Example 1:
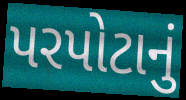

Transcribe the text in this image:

પરપોટાનું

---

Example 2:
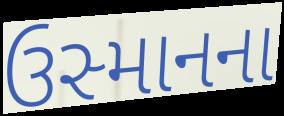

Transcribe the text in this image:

ઉસ્માનના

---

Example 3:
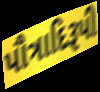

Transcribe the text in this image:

પૌત્રાદિરૂપી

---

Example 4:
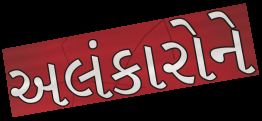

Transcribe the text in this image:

અલંકારોને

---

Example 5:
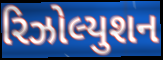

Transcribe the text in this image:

રિઝોલ્યુશન